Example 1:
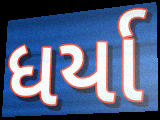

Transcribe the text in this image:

ધર્યા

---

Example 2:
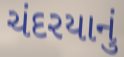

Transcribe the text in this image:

ચંદરયાનું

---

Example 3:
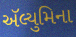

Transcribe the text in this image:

ઍલ્યુમિના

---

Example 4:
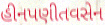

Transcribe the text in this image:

હીનપણીતવસેન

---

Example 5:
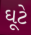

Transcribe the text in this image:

ઘૂટે